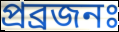
প্ৰব্ৰজনঃ